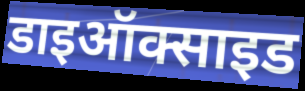
डाइऑक्साइड